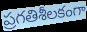
ప్రగతిశీలకంగా